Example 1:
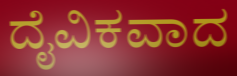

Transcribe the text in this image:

ದೈವಿಕವಾದ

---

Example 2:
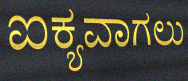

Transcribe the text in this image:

ಐಕ್ಯವಾಗಲು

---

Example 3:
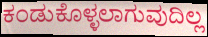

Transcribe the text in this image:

ಕಂಡುಕೊಳ್ಳಲಾಗುವುದಿಲ್ಲ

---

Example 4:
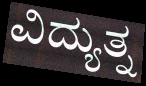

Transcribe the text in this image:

ವಿದ್ಯುತ್ನ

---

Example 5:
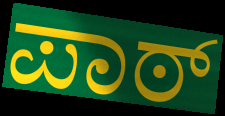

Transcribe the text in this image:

ಪಾಠ್